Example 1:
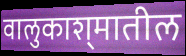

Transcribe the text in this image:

वालुकाश्मातील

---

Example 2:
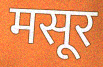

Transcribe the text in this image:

मसूर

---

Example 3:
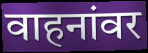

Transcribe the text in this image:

वाहनांवर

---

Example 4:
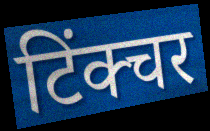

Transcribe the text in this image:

टिंक्चर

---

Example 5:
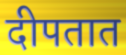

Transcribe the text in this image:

दीपतात